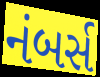
નંબર્સ